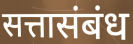
सत्तासंबंध